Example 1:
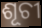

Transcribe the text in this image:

ଶୂଚୀ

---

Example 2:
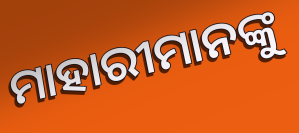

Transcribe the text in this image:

ମାହାରୀମାନଙ୍କୁ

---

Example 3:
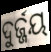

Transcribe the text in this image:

ଦୁର୍ଜ୍ଜୟ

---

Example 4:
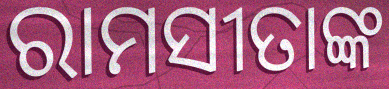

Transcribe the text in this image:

ରାମସୀତାଙ୍କ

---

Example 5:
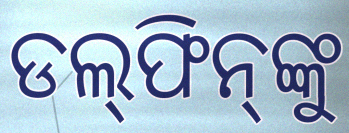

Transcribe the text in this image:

ଡଲ୍‌ଫିନ୍‌ଙ୍କୁ